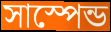
সাস্পেন্ড